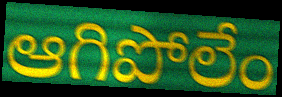
ఆగిపోలేం